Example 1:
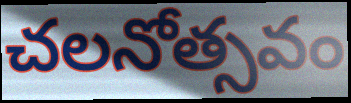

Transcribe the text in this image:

చలనోత్సవం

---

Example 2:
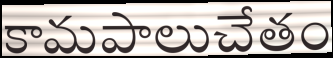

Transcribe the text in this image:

కామపాలుచేతం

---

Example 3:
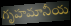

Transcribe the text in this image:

గృహమానీయ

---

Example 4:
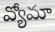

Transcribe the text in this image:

వ్యోమా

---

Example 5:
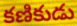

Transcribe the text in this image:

కణికుడు